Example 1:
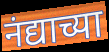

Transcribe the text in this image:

नंद्याच्या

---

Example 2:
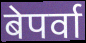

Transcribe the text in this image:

बेपर्वा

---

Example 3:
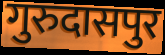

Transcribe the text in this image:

गुरुदासपुर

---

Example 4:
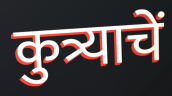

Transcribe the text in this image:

कुत्र्याचें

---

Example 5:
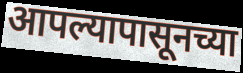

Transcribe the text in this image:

आपल्यापासूनच्या